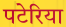
पटेरिया